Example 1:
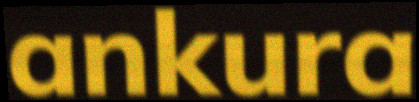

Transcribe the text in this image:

ankura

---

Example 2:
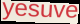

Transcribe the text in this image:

yesuve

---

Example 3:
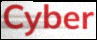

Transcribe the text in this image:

Cyber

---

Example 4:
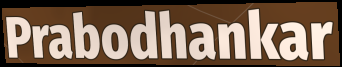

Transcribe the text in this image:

Prabodhankar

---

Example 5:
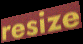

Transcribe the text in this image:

resize